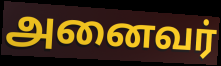
அனைவர்